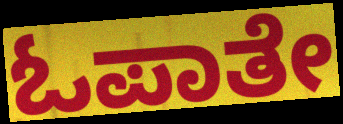
ಓಪಾತೇ